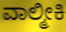
ವಾಲ್ಮೀಕಿ